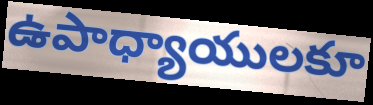
ఉపాధ్యాయులకూ